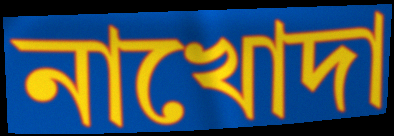
নাখোদা